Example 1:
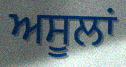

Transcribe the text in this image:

ਅਸੂਲਾਂ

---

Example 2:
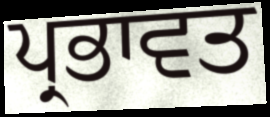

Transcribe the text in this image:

ਪ੍ਰਭਾਵਤ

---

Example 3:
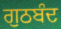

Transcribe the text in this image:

ਗੁਠਬੰਦ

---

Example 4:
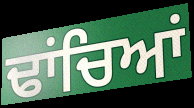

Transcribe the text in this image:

ਢਾਂਚਿਆਂ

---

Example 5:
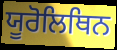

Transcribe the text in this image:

ਯੂਰੋਲਿਥਿਨ